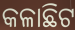
କଳାଛିଟ